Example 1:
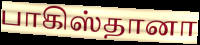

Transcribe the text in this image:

பாகிஸ்தானா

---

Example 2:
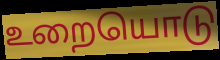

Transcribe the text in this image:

உறையொடு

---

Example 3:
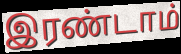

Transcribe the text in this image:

இரண்டாம்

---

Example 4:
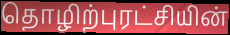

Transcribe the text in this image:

தொழிற்புரட்சியின்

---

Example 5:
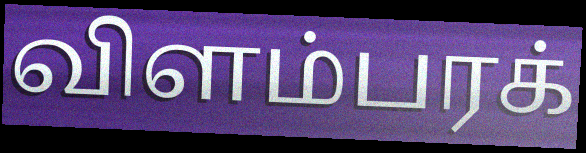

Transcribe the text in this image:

விளம்பரக்